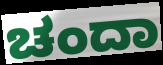
ಚಂದಾ